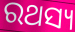
ରଥସ୍ୟ